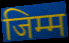
जिम्म